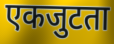
एकजुटता